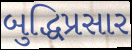
બુદ્ધિપ્રસાર